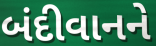
બંદીવાનને